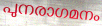
പുനരാഗമനം